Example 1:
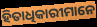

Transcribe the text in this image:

ହିତାଧିକାରୀମାନେ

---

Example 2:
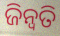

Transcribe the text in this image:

ଜିନ୍ୱତି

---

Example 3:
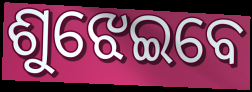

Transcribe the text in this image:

ଶୁଝେଇବେ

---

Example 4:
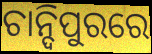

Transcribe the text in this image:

ଚାନ୍ଦିପୁରରେ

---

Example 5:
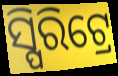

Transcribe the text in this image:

ସ୍ପିରିଟ୍ରେ